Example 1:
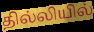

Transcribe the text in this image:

தில்லியில்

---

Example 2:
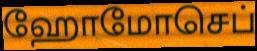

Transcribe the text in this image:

ஹோமோசெப்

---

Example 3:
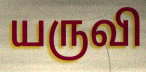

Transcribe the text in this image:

யருவி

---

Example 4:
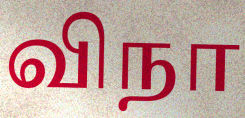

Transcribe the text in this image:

விநா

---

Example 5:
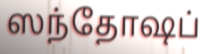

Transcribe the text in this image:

ஸந்தோஷப்